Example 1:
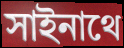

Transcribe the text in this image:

সাইনাথে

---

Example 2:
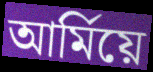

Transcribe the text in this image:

আৰ্মিয়ে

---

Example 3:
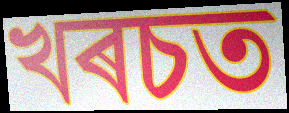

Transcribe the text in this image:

খৰচত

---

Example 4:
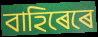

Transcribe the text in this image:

বাহিৰেৰে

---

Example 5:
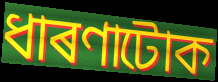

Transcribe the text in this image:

ধাৰণাটোক